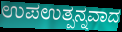
ಉಪಉತ್ಪನ್ನವಾದ